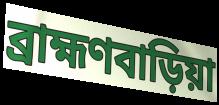
ব্রাহ্মণবাড়িয়া